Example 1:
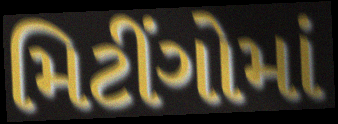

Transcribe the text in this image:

મિટીંગોમાં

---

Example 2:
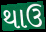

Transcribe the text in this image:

થાઉ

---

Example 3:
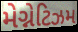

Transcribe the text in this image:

મેગ્નેટિઝમ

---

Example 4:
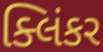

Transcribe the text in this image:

ક્લિંકર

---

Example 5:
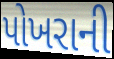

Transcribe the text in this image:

પોખરાની